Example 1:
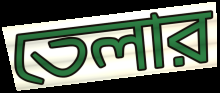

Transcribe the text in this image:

তেলার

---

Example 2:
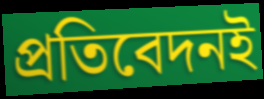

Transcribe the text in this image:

প্রতিবেদনই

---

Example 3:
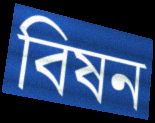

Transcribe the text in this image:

বিষন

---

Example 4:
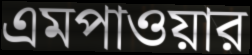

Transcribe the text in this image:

এমপাওয়ার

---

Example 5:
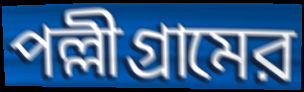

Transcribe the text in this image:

পল্লীগ্রামের